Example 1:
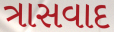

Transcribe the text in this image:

ત્રાસવાદ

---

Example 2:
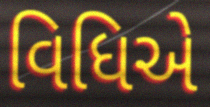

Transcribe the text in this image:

વિધિએ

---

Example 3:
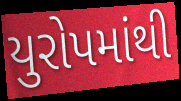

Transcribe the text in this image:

યુરોપમાંથી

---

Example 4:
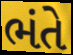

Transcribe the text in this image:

ભંતે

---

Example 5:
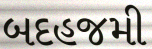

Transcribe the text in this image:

બદહજમી